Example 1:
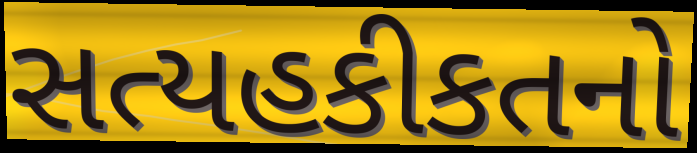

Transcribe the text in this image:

સત્યહકીકતનો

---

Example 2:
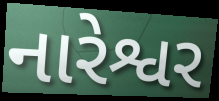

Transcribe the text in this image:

નારેશ્વર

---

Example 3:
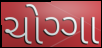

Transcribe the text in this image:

ચોગ્ગા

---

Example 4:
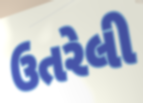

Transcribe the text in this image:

ઉતરેલી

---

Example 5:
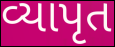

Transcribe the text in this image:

વ્યાપૃત